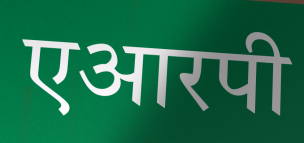
एआरपी